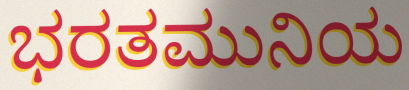
ಭರತಮುನಿಯ